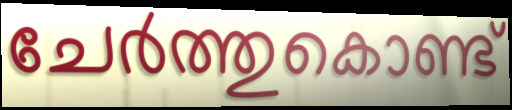
ചേർത്തുകൊണ്ട്